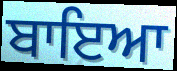
ਬਾਇਆ